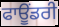
ਫਾਊਂਡਰੀ